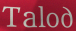
Talod